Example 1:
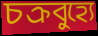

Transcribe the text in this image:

চক্রবুহ্যে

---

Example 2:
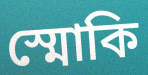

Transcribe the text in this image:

স্মোকি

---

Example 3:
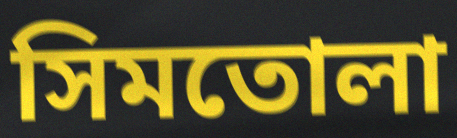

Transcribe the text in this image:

সিমতোলা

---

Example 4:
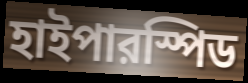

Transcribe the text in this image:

হাইপারস্পিড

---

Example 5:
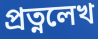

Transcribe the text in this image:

প্রত্নলেখ